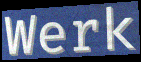
Werk